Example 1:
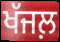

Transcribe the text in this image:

ਖੱਜਲ਼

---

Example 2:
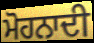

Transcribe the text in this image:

ਮੋਹਨਾਦੀ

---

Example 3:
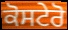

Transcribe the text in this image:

ਕੋਸਟੇਰੋ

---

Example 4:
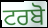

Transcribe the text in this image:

ਟਰਬੋ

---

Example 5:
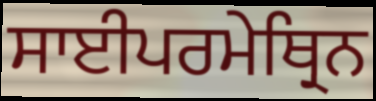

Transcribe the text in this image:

ਸਾਈਪਰਮੇਥ੍ਰਿਨ